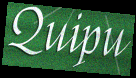
Quipu